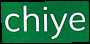
chiye